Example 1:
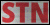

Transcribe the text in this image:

STN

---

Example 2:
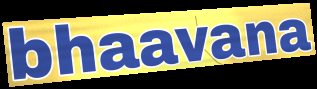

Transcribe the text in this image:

bhaavana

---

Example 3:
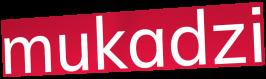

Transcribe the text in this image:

mukadzi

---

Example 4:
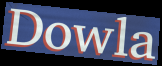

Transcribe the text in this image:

Dowla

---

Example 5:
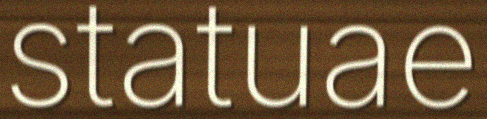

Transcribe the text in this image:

statuae